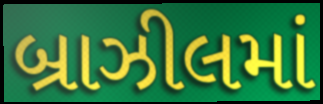
બ્રાઝીલમાં